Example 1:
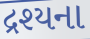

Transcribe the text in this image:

દ્રશ્યના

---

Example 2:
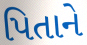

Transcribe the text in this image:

પિતાને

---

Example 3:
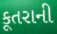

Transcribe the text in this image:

કૂતરાની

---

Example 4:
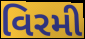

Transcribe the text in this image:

વિરમી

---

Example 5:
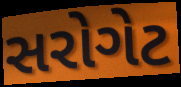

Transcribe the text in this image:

સરોગેટ